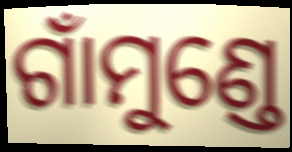
ଗାଁମୁଣ୍ଡେ